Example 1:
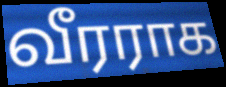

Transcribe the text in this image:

வீரராக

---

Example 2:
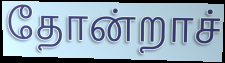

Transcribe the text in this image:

தோன்றாச்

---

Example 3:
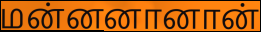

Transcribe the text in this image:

மன்னனானான்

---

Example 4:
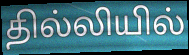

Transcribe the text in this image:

தில்லியில்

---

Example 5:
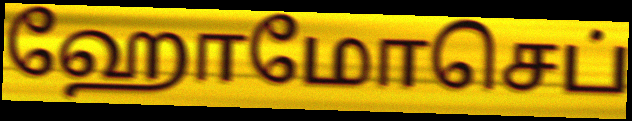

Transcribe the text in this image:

ஹோமோசெப்